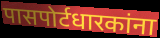
पासपोर्टधारकांना